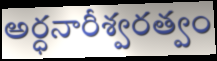
అర్ధనారీశ్వరత్వం